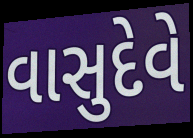
વાસુદેવે